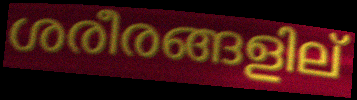
ശരീരങ്ങളില്